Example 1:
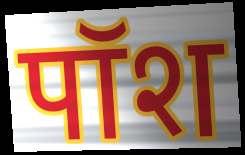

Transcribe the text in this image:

पॉश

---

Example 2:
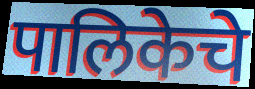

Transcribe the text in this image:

पालिकेचे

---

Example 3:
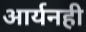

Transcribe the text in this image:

आर्यनही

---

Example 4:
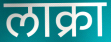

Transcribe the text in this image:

लाक्रा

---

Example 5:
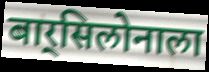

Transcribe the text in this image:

बार्सिलोनाला